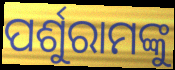
ପର୍ଶୁରାମଙ୍କୁ